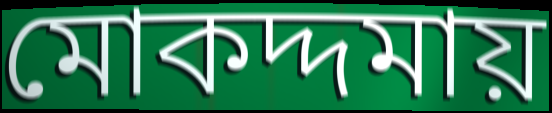
মোকদ্দমায়